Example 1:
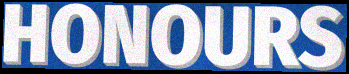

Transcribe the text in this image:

HONOURS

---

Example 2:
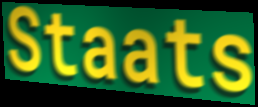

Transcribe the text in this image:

Staats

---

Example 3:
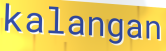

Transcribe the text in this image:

kalangan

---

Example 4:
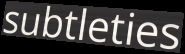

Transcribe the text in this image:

subtleties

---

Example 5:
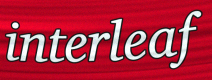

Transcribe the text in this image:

interleaf